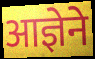
आज्ञेने